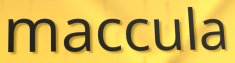
maccula